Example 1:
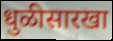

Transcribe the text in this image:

धुळीसारखा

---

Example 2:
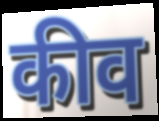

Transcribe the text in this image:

कीव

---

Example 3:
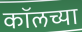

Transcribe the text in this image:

कॉलच्या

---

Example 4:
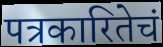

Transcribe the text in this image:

पत्रकारितेचं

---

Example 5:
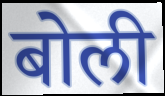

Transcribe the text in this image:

बोली